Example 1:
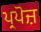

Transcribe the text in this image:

ਪ੍ਰਪੋਜ਼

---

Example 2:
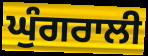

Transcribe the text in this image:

ਘੁੰਗਰਾਲੀ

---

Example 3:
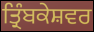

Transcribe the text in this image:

ਤ੍ਰਿੰਬਕੇਸ਼ਵਰ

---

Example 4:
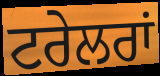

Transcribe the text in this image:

ਟਰੇਲਰਾਂ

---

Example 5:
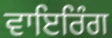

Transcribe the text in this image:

ਵਾਇਰਿੰਗ